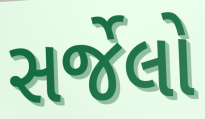
સર્જેલો